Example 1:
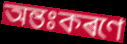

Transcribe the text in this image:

অন্তঃকৰণে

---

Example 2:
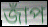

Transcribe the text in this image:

জাঁপ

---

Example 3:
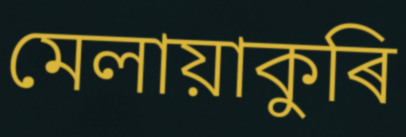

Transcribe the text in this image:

মেলায়াকুৰি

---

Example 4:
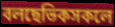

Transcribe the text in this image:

বলছেভিকসকলে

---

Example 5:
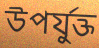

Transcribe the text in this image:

উপৰ্যুক্ত